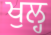
ਖੁਲ੍ਹ